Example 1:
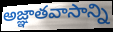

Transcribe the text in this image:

అజ్ఞాతవాసాన్ని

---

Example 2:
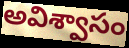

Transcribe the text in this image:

అవిశ్వాసం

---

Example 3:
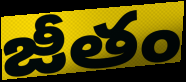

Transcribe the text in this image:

జీతం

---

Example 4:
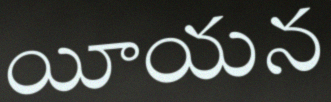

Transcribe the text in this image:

యీయన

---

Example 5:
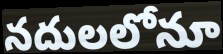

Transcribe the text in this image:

నదులలోనూ